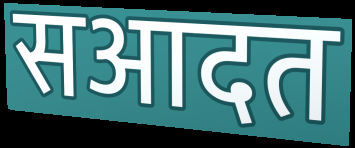
सआदत